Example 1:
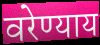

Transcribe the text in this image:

वरेण्याय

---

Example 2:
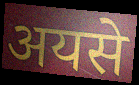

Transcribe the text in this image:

अयसे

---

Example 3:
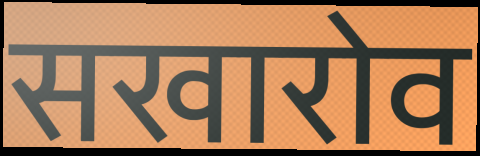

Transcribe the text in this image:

सखारोव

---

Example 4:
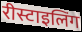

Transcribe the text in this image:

रीस्टाइलिंग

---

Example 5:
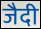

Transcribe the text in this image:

जैदी